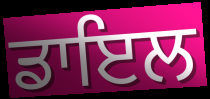
ਡਾਇਲ